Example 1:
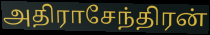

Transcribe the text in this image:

அதிராசேந்திரன்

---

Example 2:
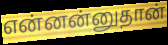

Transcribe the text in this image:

என்னன்னுதான்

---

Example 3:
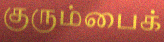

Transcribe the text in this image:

குரும்பைக்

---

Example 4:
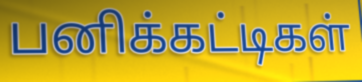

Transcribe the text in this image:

பனிக்கட்டிகள்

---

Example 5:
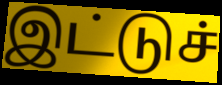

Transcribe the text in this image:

இட்டுச்